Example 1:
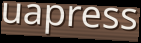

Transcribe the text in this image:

uapress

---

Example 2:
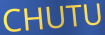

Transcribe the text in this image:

CHUTU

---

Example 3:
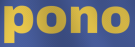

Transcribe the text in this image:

pono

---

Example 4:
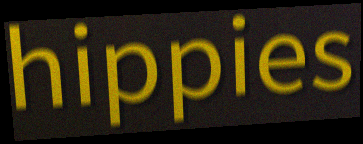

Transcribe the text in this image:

hippies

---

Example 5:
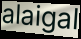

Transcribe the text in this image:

alaigal